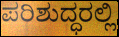
ಪರಿಶುದ್ಧರಲ್ಲಿ